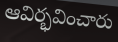
ఆవిర్భవించారు